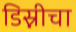
डिस्नीचा